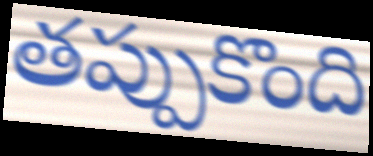
తప్పుకొంది